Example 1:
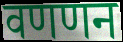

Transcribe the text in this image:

वणणन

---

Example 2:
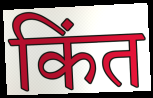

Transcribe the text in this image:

किंत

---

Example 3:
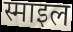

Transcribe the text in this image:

स्माइल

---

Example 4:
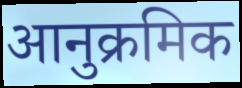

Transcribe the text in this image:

आनुक्रमिक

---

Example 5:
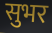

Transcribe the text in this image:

सुभर